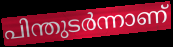
പിന്തുടർന്നാണ്